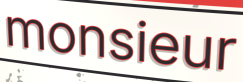
monsieur